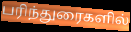
பரிந்துரைகளில்